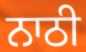
ਨਾਠੀ